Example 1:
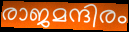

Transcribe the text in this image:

രാജമന്ദിരം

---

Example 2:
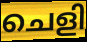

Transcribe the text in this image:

ചെളി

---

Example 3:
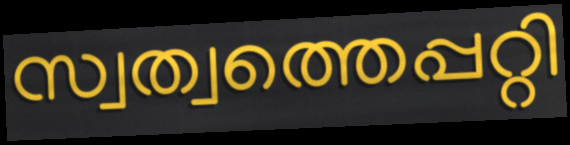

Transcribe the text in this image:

സ്വത്വത്തെപ്പറ്റി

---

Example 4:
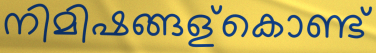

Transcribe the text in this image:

നിമിഷങ്ങള്കൊണ്ട്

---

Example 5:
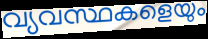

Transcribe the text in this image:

വ്യവസ്ഥകളെയും